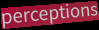
perceptions